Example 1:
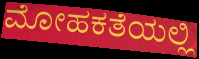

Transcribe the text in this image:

ಮೋಹಕತೆಯಲ್ಲಿ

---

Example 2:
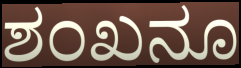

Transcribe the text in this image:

ಶಂಖನೂ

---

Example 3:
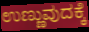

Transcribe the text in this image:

ಉಣ್ಣುವುದಕ್ಕೆ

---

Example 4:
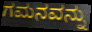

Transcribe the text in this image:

ಗಮನವನ್ನು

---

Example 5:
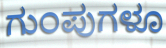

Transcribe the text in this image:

ಗುಂಪುಗಳೂ